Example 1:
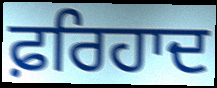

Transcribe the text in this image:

ਫ਼ਰਿਹਾਦ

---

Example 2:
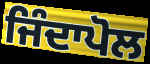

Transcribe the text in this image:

ਜਿੰਦਾਪੋਲ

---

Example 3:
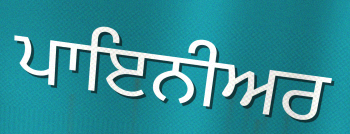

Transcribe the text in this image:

ਪਾਇਨੀਅਰ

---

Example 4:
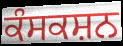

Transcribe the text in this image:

ਕੰਸਕਸ਼ਨ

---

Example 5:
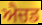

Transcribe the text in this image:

ਐਚਡ